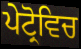
ਪੇਟ੍ਰੋਵਿਚ